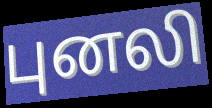
புனலி